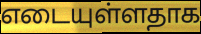
எடையுள்ளதாக